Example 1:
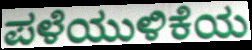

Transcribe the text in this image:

ಪಳೆಯುಳಿಕೆಯ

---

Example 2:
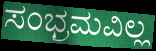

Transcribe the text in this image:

ಸಂಭ್ರಮವಿಲ್ಲ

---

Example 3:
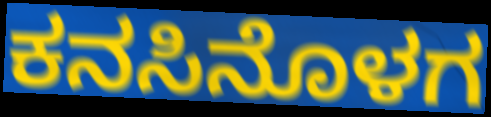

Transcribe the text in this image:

ಕನಸಿನೊಳಗ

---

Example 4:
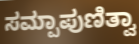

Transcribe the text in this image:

ಸಮ್ಪಾಪುಣಿತ್ವಾ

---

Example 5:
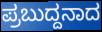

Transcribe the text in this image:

ಪ್ರಬುದ್ದನಾದ